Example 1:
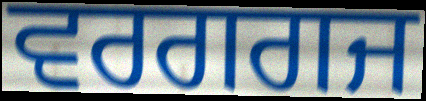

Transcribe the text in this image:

ਵਰਗਗਜ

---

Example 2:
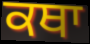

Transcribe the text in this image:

ਕਥਾ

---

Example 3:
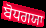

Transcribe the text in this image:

ਬੋਧਗਯਾ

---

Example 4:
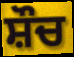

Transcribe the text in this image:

ਸ਼ੌਚ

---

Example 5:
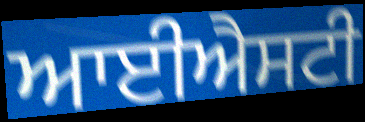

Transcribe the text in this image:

ਆਈਐਸਟੀ